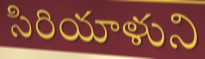
సిరియాళుని